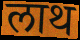
लाथ